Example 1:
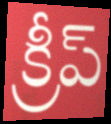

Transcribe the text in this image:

క్రీప్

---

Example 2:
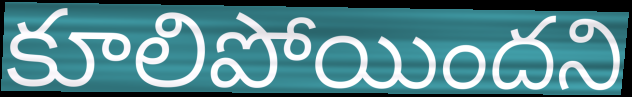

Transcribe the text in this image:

కూలిపోయిందని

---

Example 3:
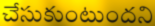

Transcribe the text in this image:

చేసుకుంటుందని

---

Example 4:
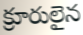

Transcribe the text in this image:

క్రూరులైన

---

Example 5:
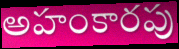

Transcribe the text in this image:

అహంకారపు